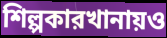
শিল্পকারখানায়ও